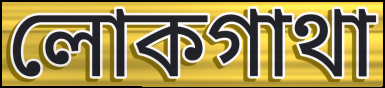
লোকগাথা